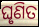
ଘୃଣିତ